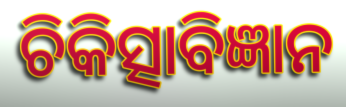
ଚିକିତ୍ସାବିଜ୍ଞାନ